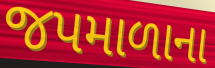
જપમાળાના